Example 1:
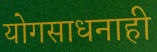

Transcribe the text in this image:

योगसाधनाही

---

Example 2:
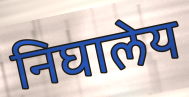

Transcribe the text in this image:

निघालेय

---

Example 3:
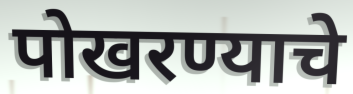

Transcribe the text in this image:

पोखरण्याचे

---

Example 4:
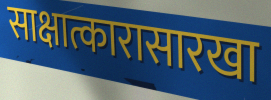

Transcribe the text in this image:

साक्षात्कारासारखा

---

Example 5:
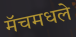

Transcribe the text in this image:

मॅचमधले